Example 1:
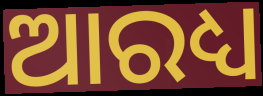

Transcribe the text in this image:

ଆରଧ୍ୟ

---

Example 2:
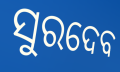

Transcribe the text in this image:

ସୁରଦେବ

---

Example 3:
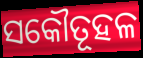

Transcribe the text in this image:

ସକୌତୂହଳ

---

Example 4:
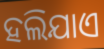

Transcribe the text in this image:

ହଲିଯାଏ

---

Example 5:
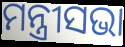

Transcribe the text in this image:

ମନ୍ତ୍ରୀସଭା